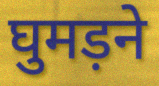
घुमड़ने